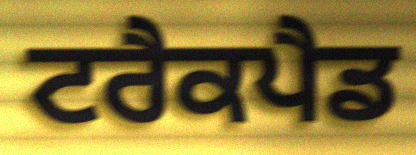
ਟਰੈਕਪੈਡ